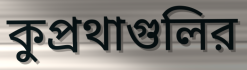
কুপ্রথাগুলির